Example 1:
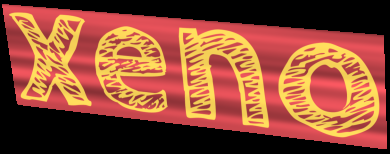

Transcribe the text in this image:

xeno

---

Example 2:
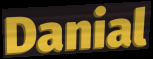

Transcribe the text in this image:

Danial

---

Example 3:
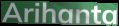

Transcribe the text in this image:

Arihanta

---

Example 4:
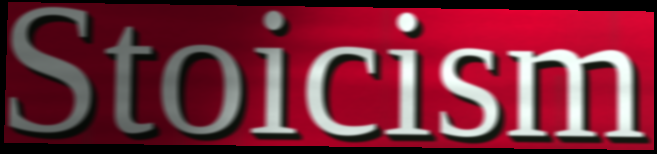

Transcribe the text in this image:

Stoicism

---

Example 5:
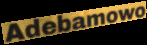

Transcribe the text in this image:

Adebamowo